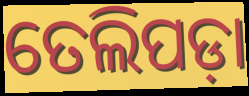
ତେଲିପଡ଼ା